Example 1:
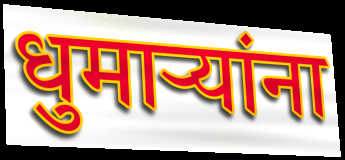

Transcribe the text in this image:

धुमाऱ्यांना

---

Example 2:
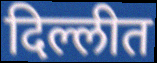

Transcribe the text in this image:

दिल्लीत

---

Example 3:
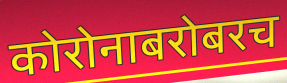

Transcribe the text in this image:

कोरोनाबरोबरच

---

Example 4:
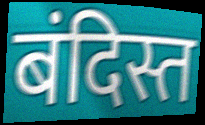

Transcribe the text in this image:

बंदिस्त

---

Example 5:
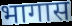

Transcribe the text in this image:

भागास